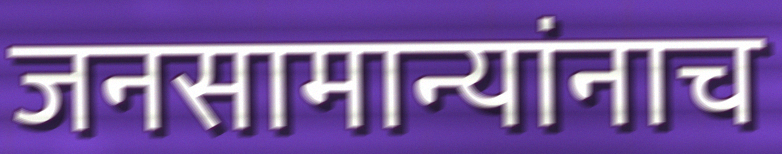
जनसामान्यांनाच